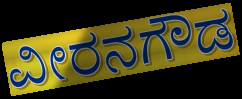
ವೀರನಗೌಡ